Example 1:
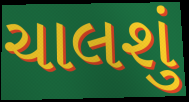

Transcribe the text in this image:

ચાલશું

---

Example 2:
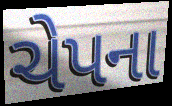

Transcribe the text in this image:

ચેપના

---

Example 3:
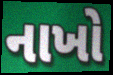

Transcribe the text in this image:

નાખો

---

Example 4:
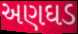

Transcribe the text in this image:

અણઘડ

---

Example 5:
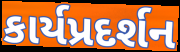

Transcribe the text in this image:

કાર્યપ્રદર્શન